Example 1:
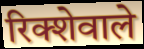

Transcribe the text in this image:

रिक्‍शेवाले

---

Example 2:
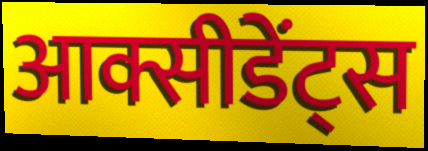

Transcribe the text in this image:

आक्सीडेंट्स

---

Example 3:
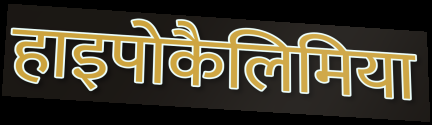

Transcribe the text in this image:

हाइपोकैलिमिया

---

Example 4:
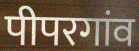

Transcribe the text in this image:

पीपरगांव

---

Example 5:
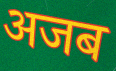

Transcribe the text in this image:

अजब